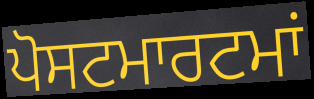
ਪੋਸਟਮਾਰਟਮਾਂ